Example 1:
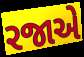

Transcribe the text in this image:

રજાએ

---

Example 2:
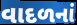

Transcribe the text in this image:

વાદળનાં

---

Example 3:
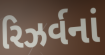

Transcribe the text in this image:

રિઝર્વનાં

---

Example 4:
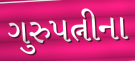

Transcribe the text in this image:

ગુરુપત્નીના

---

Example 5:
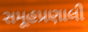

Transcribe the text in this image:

સમૂહપ્રણાલી